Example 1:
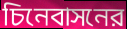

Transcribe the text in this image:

চিনেবাসনের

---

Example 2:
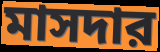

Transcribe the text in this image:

মাসদার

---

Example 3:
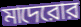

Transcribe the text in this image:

মাদেরোর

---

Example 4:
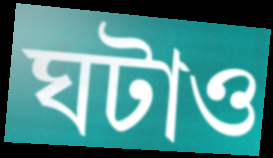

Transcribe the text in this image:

ঘটাও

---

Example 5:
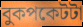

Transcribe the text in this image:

বুকপকেটটা